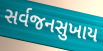
સર્વજનસુખાય